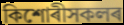
কিশোৰীসকলৰ